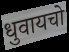
धुवायचो